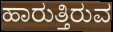
ಹಾರುತ್ತಿರುವ